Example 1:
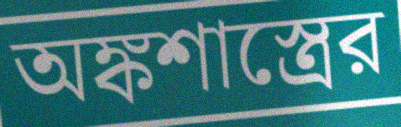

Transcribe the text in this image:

অঙ্কশাস্ত্রের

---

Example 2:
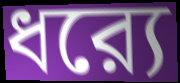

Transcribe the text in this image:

ধর‍্যে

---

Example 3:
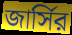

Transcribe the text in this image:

জার্সির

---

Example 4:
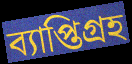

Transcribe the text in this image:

ব্যাপ্তিগ্রহ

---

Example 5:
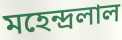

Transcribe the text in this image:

মহেন্দ্রলাল